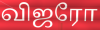
விஜரோ